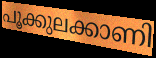
പൂക്കുലക്കാണി